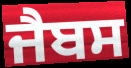
ਜੈਬਸ